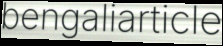
bengaliarticle